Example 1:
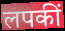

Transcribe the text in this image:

लपकीं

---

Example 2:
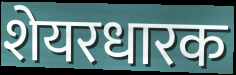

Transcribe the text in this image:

शेयरधारक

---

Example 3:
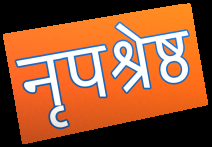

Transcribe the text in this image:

नृपश्रेष्ठ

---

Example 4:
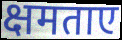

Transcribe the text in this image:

क्षमताए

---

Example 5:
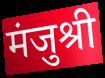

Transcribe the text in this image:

मंजुश्री